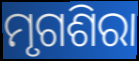
ମୃଗଶିରା